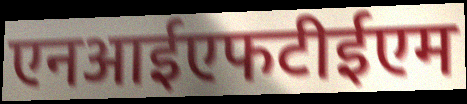
एनआईएफटीईएम